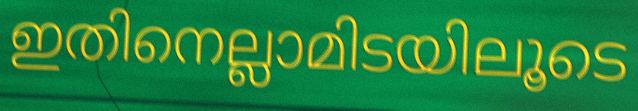
ഇതിനെല്ലാമിടയിലൂടെ